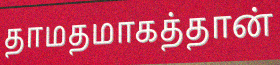
தாமதமாகத்தான்